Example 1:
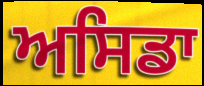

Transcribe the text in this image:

ਅਸਿਡਾ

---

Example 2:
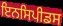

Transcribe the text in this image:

ਇਨਸਿਪੀਡਸ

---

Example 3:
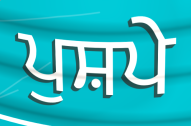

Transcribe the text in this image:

ਪੁਸ਼ਪੇ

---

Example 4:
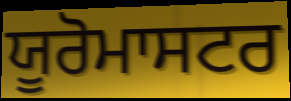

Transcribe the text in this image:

ਯੂਰੋਮਾਸਟਰ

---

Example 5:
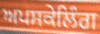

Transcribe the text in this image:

ਅਪਸਕੇਲਿੰਗ